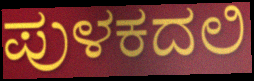
ಪುಳಕದಲಿ